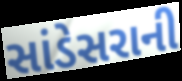
સાંડેસરાની